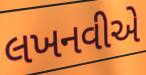
લખનવીએ